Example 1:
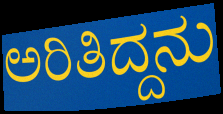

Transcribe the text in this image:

ಅರಿತಿದ್ದನು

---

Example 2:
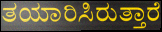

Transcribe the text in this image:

ತಯಾರಿಸಿರುತ್ತಾರೆ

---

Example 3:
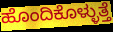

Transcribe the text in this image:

ಹೊಂದಿಕೊಳ್ಳುತ್ತೆ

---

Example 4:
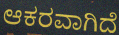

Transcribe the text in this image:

ಆಕರವಾಗಿದೆ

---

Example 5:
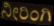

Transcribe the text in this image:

ನೀರಿಂಗಿ